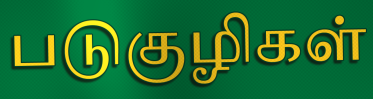
படுகுழிகள்